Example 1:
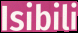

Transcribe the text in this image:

Isibili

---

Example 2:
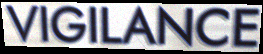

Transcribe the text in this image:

VIGILANCE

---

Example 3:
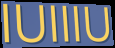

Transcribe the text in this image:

IUIIIU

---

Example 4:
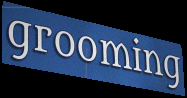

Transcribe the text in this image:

grooming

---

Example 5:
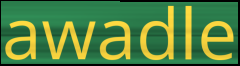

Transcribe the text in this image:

awadle